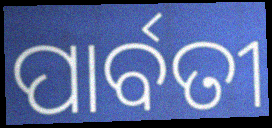
ପାର୍ବତୀ